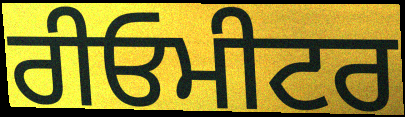
ਰੀਓਮੀਟਰ